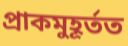
প্ৰাকমুহূৰ্তত